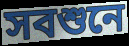
সবশুনে